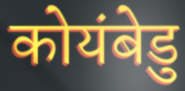
कोयंबेडु